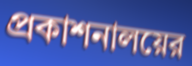
প্রকাশনালয়ের